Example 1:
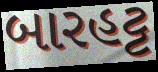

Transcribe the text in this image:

બારહટ્ટ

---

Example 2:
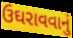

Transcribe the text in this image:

ઉઘરાવવાનું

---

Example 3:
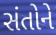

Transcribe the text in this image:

સંતોને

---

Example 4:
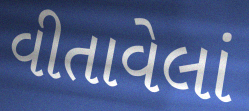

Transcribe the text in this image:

વીતાવેલાં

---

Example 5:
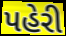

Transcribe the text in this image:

પહેરી